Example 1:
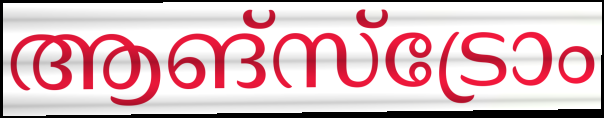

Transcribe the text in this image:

ആങ്സ്ട്രോം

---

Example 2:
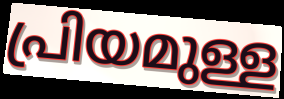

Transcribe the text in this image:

പ്രിയമുള്ള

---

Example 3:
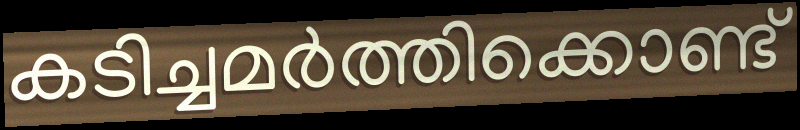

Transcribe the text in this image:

കടിച്ചമർത്തിക്കൊണ്ട്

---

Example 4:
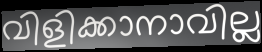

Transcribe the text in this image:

വിളിക്കാനാവില്ല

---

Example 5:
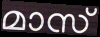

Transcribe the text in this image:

മാസ്